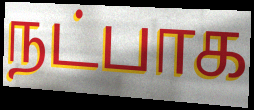
நட்பாக